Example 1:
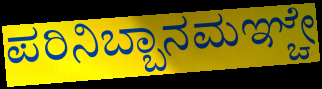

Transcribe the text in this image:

ಪರಿನಿಬ್ಬಾನಮಞ್ಚೇ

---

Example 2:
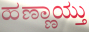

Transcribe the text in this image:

ಹಣ್ಣಾಯ್ತು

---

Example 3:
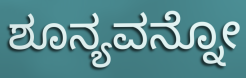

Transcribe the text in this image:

ಶೂನ್ಯವನ್ನೋ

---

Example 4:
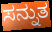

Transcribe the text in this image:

ಸನ್ನುತ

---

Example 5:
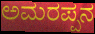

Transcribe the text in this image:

ಅಮರಪ್ಪನ